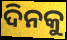
ଦିନକୁ